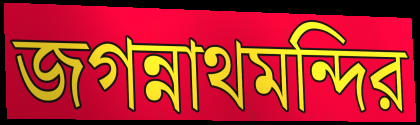
জগন্নাথমন্দির